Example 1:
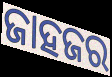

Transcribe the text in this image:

ଜାହଜର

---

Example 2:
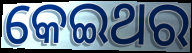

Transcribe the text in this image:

କେଇଥର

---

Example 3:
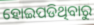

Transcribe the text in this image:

ହୋଇପଡିଥିବାରୁ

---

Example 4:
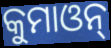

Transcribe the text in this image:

କୁମାଓନ୍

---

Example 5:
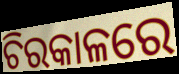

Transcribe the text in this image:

ଚିରକାଳରେ